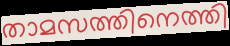
താമസത്തിനെത്തി